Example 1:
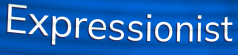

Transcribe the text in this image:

Expressionist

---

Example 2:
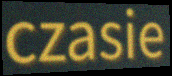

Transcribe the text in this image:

czasie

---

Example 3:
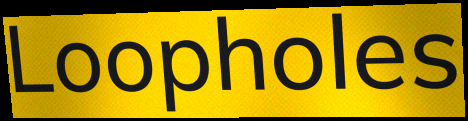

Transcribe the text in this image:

Loopholes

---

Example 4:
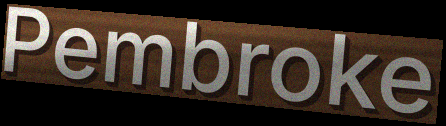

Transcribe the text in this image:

Pembroke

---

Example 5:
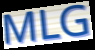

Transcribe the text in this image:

MLG